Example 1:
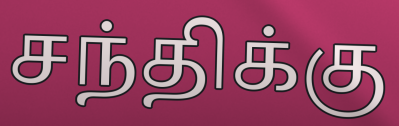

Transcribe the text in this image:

சந்திக்கு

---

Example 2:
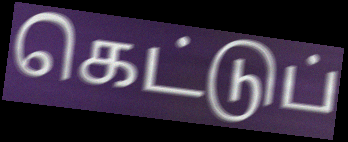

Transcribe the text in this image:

கெட்டுப்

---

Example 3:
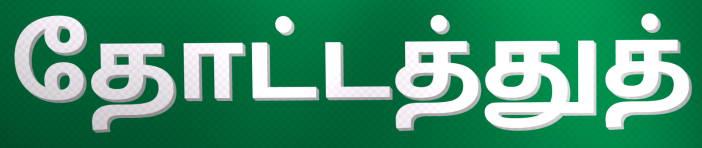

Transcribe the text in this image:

தோட்டத்துத்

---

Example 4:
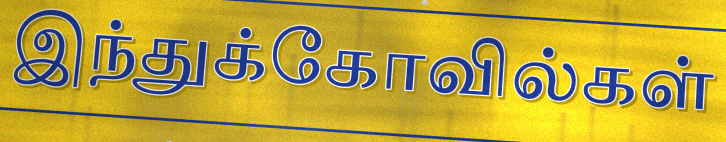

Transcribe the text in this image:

இந்துக்கோவில்கள்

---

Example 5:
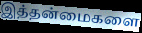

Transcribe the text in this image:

இத்தன்மைகளை